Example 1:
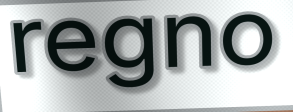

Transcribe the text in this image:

regno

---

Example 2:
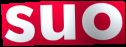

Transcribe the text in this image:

suo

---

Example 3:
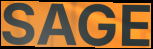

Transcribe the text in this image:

SAGE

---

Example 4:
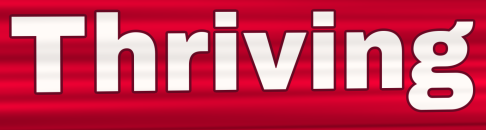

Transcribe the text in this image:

Thriving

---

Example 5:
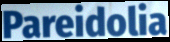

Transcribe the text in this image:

Pareidolia